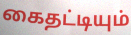
கைதட்டியும்